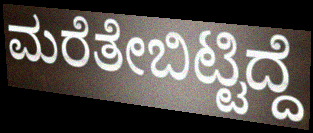
ಮರೆತೇಬಿಟ್ಟಿದ್ದೆ